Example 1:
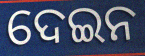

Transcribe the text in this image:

ଦେଇନ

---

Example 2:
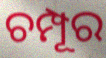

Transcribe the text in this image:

ଚମ୍ପୂର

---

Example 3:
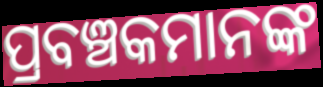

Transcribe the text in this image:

ପ୍ରବଞ୍ଚକମାନଙ୍କ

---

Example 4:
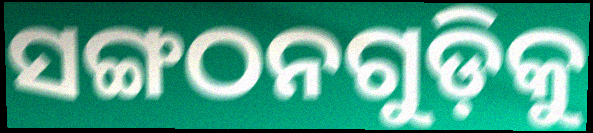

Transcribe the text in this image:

ସଙ୍ଗଠନଗୁଡ଼ିକୁ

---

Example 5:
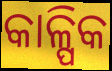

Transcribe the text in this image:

କାଳ୍ପିକ